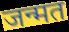
जन्मत